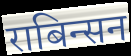
राबिन्सन